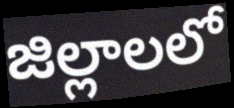
జిల్లాలలో